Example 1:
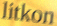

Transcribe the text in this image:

litkon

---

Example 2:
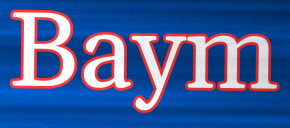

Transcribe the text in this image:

Baym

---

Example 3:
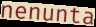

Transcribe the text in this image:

nenunta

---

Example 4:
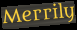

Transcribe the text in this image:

Merrily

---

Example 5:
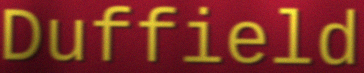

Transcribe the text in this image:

Duffield